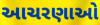
આચરણાઓ